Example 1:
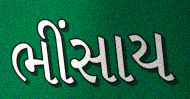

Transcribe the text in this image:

ભીંસાય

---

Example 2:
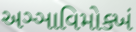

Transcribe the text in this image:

અઞ્ઞાવિમોક્ખં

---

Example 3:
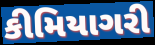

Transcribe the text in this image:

કીમિયાગરી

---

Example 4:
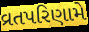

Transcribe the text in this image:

વ્રતપરિણામે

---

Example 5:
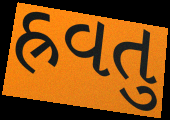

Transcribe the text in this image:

હ્રવતુ